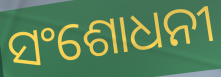
ସଂଶୋଧନୀ